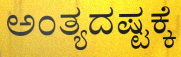
ಅಂತ್ಯದಷ್ಟಕ್ಕೆ